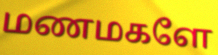
மணமகளே